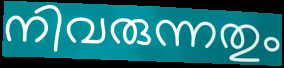
നിവരുന്നതും